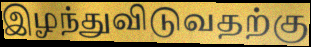
இழந்துவிடுவதற்கு